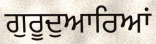
ਗੁਰੂਦੁਆਰਿਆਂ